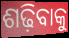
ଶଢ଼ିବାକୁ